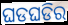
ଘଡଘଡିର